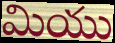
మియు